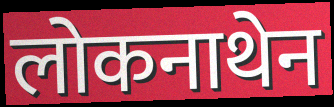
लोकनाथेन